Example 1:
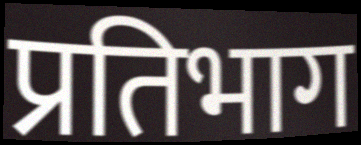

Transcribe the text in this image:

प्रतिभाग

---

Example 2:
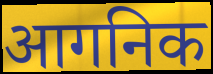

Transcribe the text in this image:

आगनिक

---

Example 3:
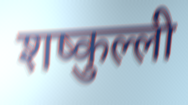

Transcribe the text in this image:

शष्कुल्ली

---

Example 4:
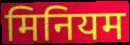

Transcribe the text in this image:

मिनियम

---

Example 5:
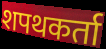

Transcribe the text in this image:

शपथकर्ता